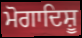
ਮੋਗਾਦਿਸ਼ੂ